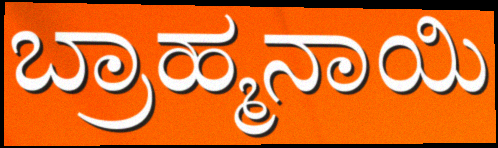
ಬ್ರಾಹ್ಮನಾಯಿ